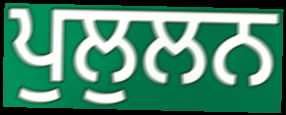
ਪੁਲੁਲਨ